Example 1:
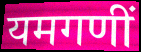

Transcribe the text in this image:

यमगणीं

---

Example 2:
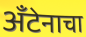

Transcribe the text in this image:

अँटेनाचा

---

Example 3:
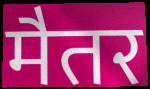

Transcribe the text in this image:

मैतर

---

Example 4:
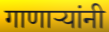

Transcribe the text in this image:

गाणाऱ्यांनी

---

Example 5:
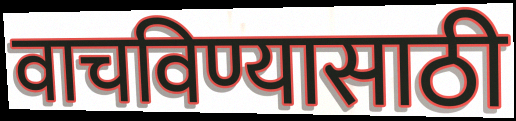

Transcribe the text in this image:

वाचविण्यासाठी